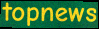
topnews